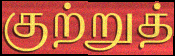
குற்றுத்